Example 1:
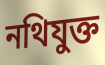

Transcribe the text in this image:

নথিযুক্ত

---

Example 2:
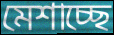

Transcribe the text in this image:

মেশাচ্ছে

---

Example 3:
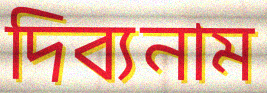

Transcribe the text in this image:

দিব্যনাম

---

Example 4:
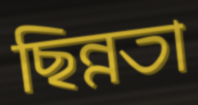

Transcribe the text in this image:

ছিন্নতা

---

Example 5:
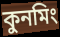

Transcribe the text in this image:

কুনমিং